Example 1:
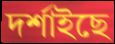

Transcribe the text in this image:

দৰ্শাইছে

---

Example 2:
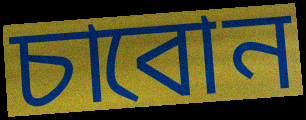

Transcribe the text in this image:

চাবোন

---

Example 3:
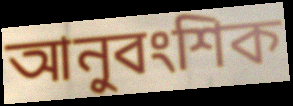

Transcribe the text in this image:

আনুবংশিক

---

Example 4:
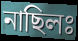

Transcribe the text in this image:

নাছিলঃ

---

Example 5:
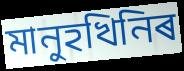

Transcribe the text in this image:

মানুহখিনিৰ